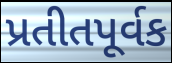
પ્રતીતપૂર્વક